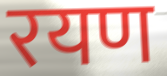
रयण